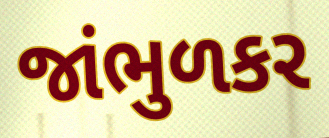
જાંભુળકર